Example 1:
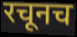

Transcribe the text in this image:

रचूनच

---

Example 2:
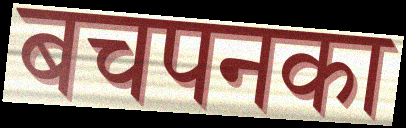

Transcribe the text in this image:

बचपनका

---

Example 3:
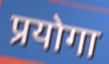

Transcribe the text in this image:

प्रयोगा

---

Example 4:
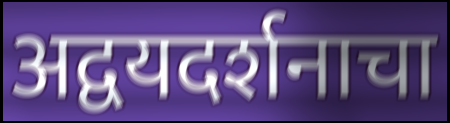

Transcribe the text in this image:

अद्वयदर्शनाचा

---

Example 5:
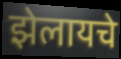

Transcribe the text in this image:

झेलायचे